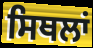
ਸਿਥਲਾਂ